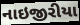
નાઇજીરીયા